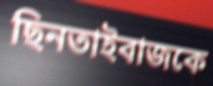
ছিনতাইবাজকে